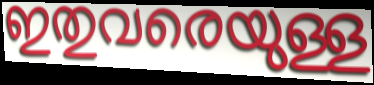
ഇതുവരെയുള്ള